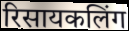
रिसायकलिंग